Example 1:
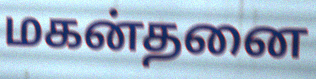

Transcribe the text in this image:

மகன்தனை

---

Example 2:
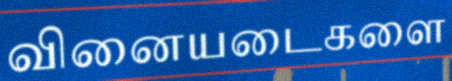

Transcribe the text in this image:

வினையடைகளை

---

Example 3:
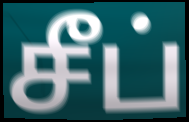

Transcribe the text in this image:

சீப்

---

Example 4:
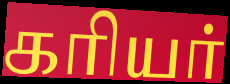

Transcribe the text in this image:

கரியர்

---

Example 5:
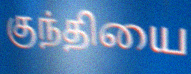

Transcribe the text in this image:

குந்தியை